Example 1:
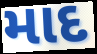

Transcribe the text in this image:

માદ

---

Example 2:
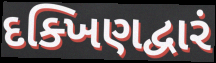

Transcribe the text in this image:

દક્ખિણદ્વારં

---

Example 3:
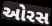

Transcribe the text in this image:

ઓરસ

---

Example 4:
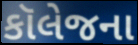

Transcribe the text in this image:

કૉલેજના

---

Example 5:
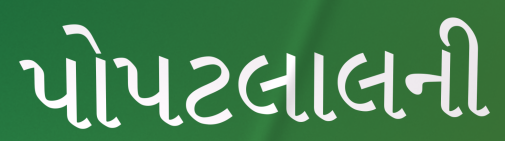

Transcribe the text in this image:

પોપટલાલની